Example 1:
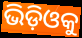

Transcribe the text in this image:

ଭିଡ଼ିଓକୁ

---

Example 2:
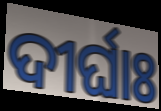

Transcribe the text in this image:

ଦୀର୍ଘାଃ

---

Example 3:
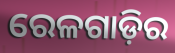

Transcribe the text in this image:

ରେଳଗାଡ଼ିର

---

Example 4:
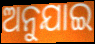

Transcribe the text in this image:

ଅନୁଯାଇ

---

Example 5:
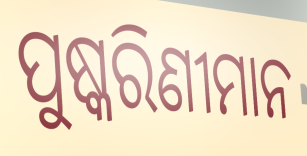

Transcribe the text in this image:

ପୁଷ୍କରିଣୀମାନ